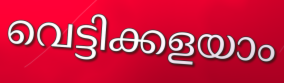
വെട്ടിക്കളയാം